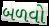
બળવો